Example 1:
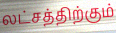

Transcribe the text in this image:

லட்சத்திற்கும்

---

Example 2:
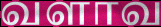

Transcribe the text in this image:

வளாவ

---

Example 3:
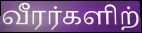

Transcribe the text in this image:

வீரர்களிற்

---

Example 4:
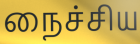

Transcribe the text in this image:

நைச்சிய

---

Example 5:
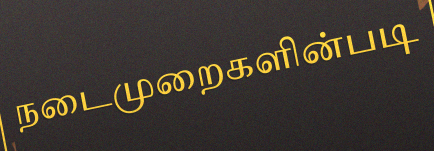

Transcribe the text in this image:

நடைமுறைகளின்படி